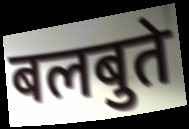
बलबुते